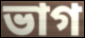
ভাগ